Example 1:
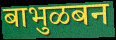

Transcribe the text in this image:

बाभुळबन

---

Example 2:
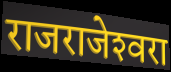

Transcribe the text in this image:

राजराजेश्वरा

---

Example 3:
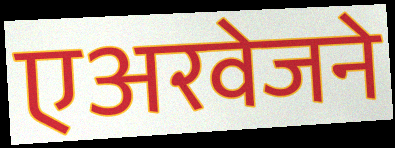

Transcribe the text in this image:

एअरवेजने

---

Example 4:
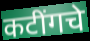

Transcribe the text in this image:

कटींगचे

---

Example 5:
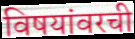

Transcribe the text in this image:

विषयांवरची